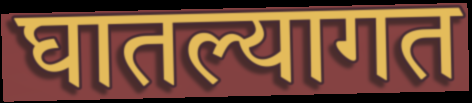
घातल्यागत